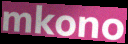
mkono